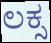
ಲಕ್ಸ